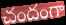
చందంగా